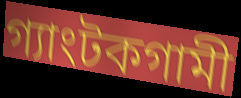
গ্যাংটকগামী